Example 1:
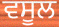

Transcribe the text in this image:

ਵਸੂਲ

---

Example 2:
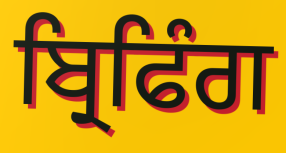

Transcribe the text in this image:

ਬ੍ਰਿਫਿੰਗ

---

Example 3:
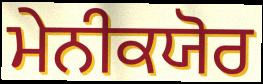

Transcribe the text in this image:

ਮੇਨੀਕਯੋਰ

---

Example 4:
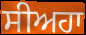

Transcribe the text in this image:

ਸੀਅਹਾ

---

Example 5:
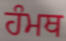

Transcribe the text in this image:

ਹੰਮਥ